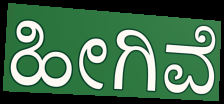
ಹೀಗಿವೆ